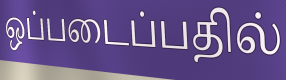
ஒப்படைப்பதில்